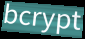
bcrypt